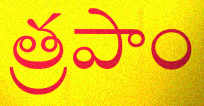
త్రపాం